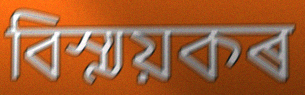
বিস্ময়কৰ